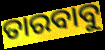
ତାରବାବୁ